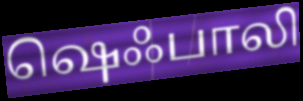
ஷெஃபாலி